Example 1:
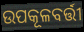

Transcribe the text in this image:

ଉପକୂଳବର୍ତ୍ତୀ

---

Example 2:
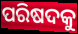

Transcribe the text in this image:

ପରିଷଦକୁ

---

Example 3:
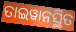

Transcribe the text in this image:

ତାଇୱାନସ୍ଥିତ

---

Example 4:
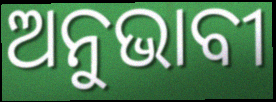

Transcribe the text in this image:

ଅନୁଭାବୀ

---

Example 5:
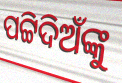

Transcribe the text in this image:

ପଟ୍ଟିଦିଅଁଙ୍କୁ